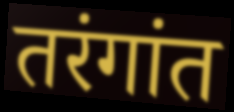
तरंगांत